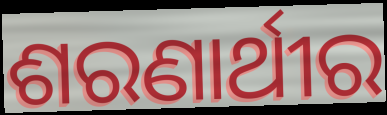
ଶରଣାର୍ଥୀର